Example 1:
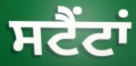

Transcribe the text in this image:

ਸਟੈਂਟਾਂ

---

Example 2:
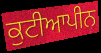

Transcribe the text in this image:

ਕੁਟੀਆਪੀਨ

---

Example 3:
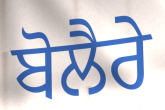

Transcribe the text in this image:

ਬੋਲੈਰੇ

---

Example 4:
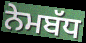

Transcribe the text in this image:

ਨੇਮਬੱਧ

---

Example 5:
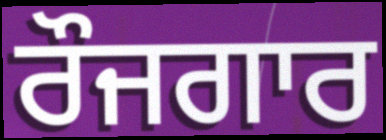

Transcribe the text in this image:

ਰੌਜਗਾਰ